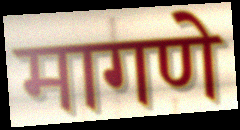
मागणे